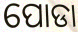
ପୋଡା